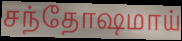
சந்தோஷமாய்